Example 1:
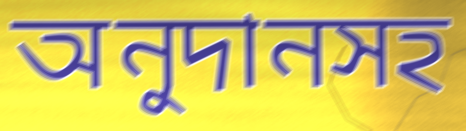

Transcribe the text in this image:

অনুদানসহ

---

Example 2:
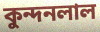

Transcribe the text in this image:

কুন্দনলাল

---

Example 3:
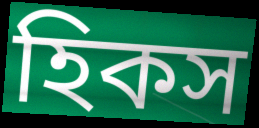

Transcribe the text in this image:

হিকস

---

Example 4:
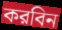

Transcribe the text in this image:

করবিন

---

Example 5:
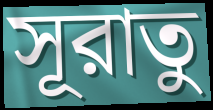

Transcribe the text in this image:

সূরাতু